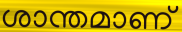
ശാന്തമാണ്